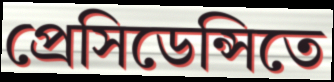
প্রেসিডেন্সিতে